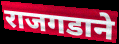
राजगडाने